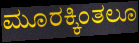
ಮೂರಕ್ಕಿಂತಲೂ